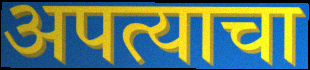
अपत्याचा